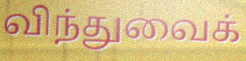
விந்துவைக்